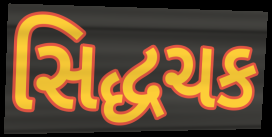
સિદ્ધચક